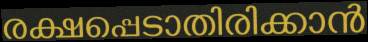
രക്ഷപ്പെടാതിരിക്കാൻ